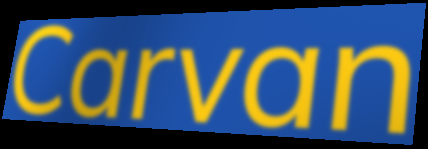
Carvan